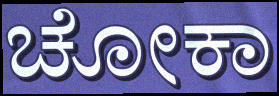
ಚೋಕಾ